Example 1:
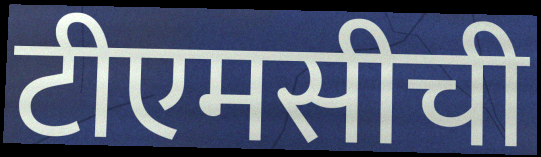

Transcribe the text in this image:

टीएमसीची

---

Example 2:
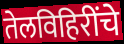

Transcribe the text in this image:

तेलविहिरींचे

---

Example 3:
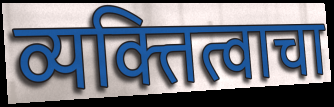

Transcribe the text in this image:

व्यक्तित्वाचा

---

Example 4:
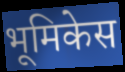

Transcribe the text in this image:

भूमिकेस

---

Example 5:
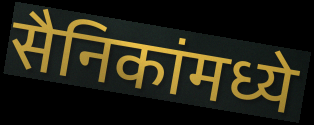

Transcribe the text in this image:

सैनिकांमध्ये